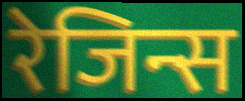
रेजिन्स